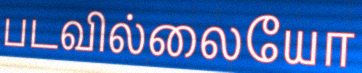
படவில்லையோ